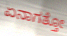
ಏನಾಗತ್ತೋ